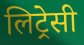
लिट्रेसी